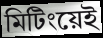
মিটিংয়েই